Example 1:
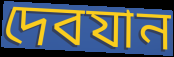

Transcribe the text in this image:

দেবযান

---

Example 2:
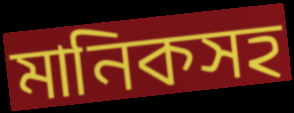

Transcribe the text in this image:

মানিকসহ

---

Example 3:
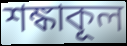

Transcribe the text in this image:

শঙ্কাকূল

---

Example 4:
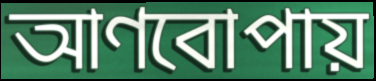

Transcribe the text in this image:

আণবোপায়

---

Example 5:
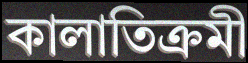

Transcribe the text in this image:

কালাতিক্রমী